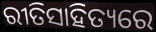
ରୀତିସାହିତ୍ୟରେ